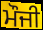
ਮੌਜੀ